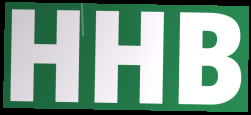
HHB